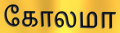
கோலமா